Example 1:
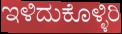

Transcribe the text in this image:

ಇಳಿದುಕೊಳ್ಳಿರಿ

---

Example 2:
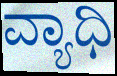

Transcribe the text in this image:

ವ್ಯಾಧಿ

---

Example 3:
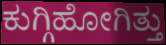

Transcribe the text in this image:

ಕುಗ್ಗಿಹೋಗಿತ್ತು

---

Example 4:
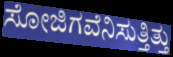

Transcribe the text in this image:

ಸೋಜಿಗವೆನಿಸುತ್ತಿತ್ತು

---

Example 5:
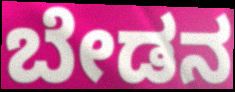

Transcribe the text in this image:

ಬೇಡನ